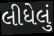
લીધેલું